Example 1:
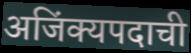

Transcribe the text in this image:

अजिंक्यपदाची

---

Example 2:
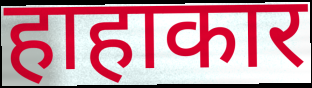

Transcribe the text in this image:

हाहाकार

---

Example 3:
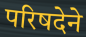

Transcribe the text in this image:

परिषदेने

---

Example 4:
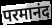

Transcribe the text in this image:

परमानंद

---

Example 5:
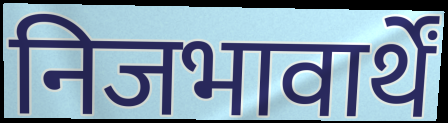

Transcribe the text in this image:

निजभावार्थें